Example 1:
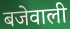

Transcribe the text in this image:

बजेवाली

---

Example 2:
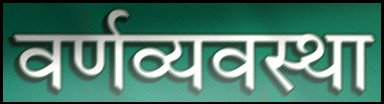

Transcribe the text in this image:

वर्णव्यवस्था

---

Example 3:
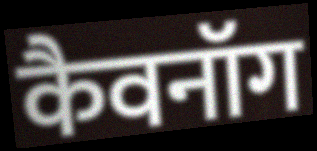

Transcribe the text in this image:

कैवनॉग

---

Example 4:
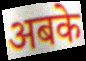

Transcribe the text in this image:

अबके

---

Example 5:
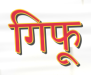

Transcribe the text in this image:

गिफू